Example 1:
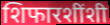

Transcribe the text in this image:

शिफारशींशी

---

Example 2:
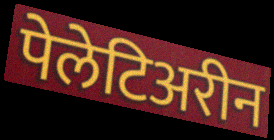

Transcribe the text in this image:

पेलेटिअरीन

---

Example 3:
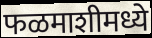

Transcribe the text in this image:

फळमाशीमध्ये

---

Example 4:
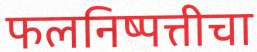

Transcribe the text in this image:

फलनिष्पत्तीचा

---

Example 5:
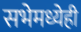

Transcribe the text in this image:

सभेमध्येही